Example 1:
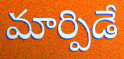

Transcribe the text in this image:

మార్పిడే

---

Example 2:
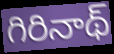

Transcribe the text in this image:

గిరినాథ్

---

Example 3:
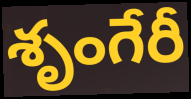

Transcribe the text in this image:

శృంగేరీ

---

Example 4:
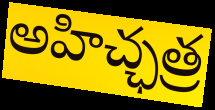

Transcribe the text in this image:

అహిచ్ఛత్ర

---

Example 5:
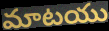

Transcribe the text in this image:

మాటయు